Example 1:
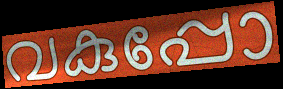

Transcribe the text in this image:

വകുപ്പോ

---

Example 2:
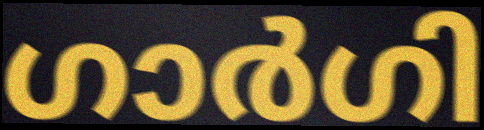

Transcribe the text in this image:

ഗാർഗി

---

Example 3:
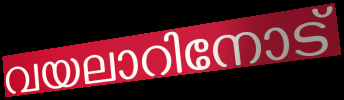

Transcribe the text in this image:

വയലാറിനോട്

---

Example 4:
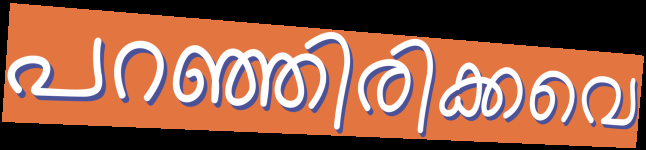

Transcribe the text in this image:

പറഞ്ഞിരിക്കവെ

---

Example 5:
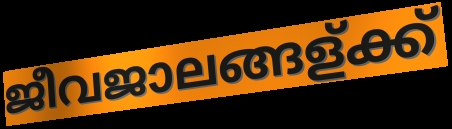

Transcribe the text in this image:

ജീവജാലങ്ങള്ക്ക്